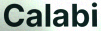
Calabi